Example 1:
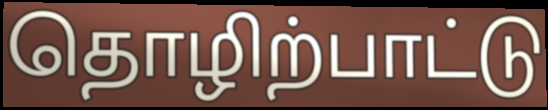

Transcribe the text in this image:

தொழிற்பாட்டு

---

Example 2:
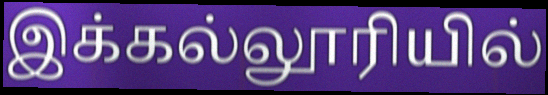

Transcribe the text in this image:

இக்கல்லூரியில்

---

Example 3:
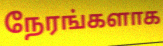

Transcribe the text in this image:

நேரங்களாக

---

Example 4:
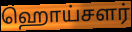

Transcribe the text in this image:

ஹொய்சளர்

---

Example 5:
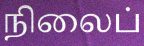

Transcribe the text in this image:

நிலைப்